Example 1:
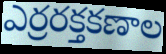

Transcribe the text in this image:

ఎర్రరక్తకణాల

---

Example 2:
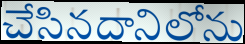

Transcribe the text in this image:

చేసినదానిలోను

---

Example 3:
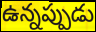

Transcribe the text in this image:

ఉన్నప్పుడు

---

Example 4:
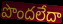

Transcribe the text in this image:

పొందలేదా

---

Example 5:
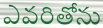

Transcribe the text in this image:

ఎవరితోను